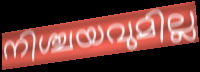
നിശ്ചയവുമില്ല